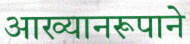
आख्यानरूपाने